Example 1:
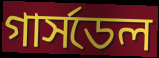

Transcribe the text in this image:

গার্সডেল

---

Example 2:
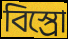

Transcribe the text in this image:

বিস্ত্রো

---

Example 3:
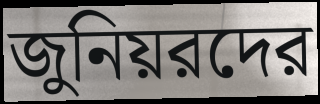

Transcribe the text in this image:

জুনিয়রদের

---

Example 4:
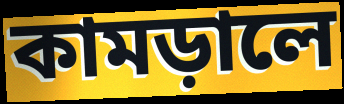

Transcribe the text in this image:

কামড়ালে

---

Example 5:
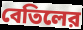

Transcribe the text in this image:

বেতিলের